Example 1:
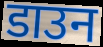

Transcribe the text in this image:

डाउन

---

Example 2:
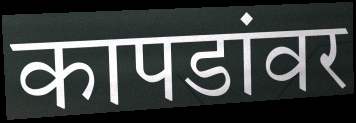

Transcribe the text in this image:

कापडांवर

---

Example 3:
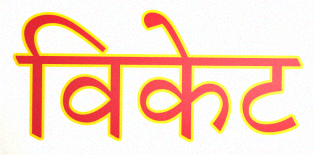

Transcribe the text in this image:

विकेट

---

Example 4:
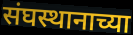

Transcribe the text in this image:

संघस्थानाच्या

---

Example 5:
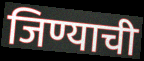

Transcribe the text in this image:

जिण्याची